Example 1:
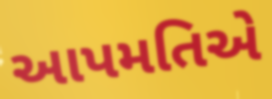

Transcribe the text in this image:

આપમતિએ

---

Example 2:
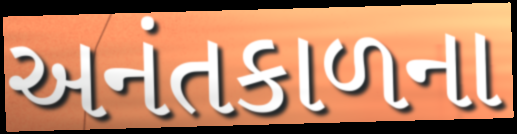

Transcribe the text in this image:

અનંતકાળના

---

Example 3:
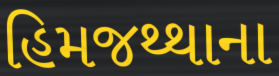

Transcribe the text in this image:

હિમજથ્થાના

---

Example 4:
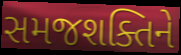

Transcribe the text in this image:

સમજશક્તિને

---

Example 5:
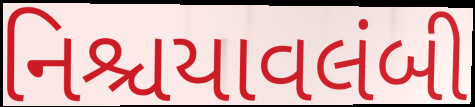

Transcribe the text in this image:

નિશ્ચયાવલંબી